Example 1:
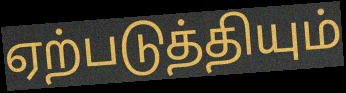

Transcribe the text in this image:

ஏற்படுத்தியும்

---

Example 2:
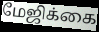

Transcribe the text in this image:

மேஜிக்கை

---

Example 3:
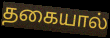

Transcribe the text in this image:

தகையால்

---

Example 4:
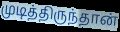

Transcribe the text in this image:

முடித்திருந்தான்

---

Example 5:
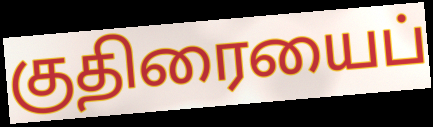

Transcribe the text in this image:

குதிரையைப்